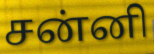
சன்னி